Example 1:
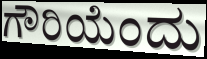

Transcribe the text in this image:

ಗೌರಿಯೆಂದು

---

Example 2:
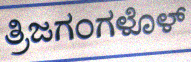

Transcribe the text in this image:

ತ್ರಿಜಗಂಗಳೊಳ್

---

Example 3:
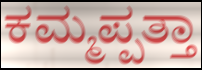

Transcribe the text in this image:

ಕಮ್ಮಪ್ಪತ್ತಾ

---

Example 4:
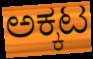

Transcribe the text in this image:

ಅಕ್ಕಟ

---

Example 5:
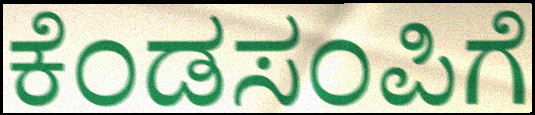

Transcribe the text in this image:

ಕೆಂಡಸಂಪಿಗೆ